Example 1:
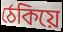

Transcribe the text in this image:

ঠেকিয়ে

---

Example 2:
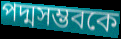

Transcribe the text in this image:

পদ্মসম্ভবকে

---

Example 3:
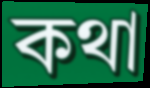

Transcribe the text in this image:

কথা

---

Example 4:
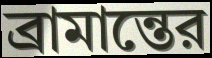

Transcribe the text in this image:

ব্রামান্তের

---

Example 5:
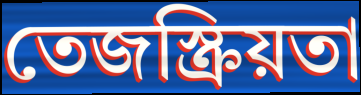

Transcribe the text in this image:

তেজস্ক্রিয়তা